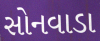
સોનવાડા